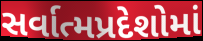
સર્વાત્મપ્રદેશોમાં